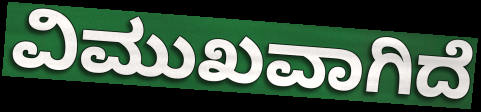
ವಿಮುಖವಾಗಿದೆ